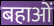
बहाओं